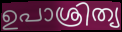
ഉപാശ്രിത്യ